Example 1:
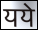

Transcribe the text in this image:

यये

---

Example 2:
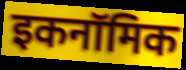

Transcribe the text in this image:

इकनॉमिक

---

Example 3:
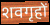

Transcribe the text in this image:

शवगृहों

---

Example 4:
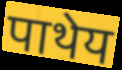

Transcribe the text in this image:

पाथेय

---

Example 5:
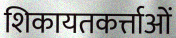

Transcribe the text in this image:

शिकायतकर्त्ताओं